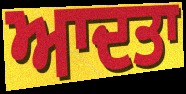
ਆਦਤਾ